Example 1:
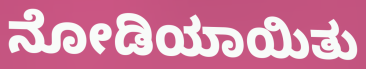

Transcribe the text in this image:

ನೋಡಿಯಾಯಿತು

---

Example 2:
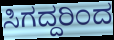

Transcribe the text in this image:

ಸಿಗದ್ದರಿಂದ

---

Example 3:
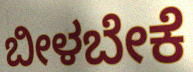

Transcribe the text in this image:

ಬೀಳಬೇಕೆ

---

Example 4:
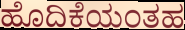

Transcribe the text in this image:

ಹೊದಿಕೆಯಂತಹ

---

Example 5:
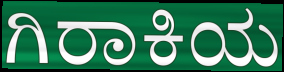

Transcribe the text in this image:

ಗಿರಾಕಿಯ